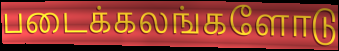
படைக்கலங்களோடு